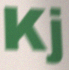
Kj